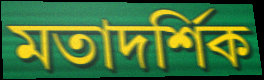
মতাদর্শিক